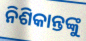
ନିଶିକାନ୍ତଙ୍କୁ